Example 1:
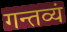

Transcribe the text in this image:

गन्तव्यं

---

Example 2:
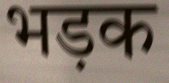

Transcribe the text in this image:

भड़क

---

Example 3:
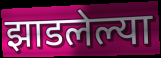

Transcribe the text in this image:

झाडलेल्या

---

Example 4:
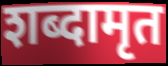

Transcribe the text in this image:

शब्दामृत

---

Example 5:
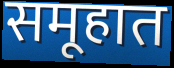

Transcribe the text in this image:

समूहात